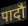
पादौ